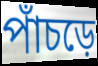
পাঁচড়ে